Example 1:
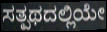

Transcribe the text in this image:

ಸತ್ಪಥದಲ್ಲಿಯೇ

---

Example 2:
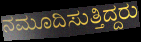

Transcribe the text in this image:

ನಮೂದಿಸುತ್ತಿದ್ದರು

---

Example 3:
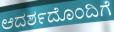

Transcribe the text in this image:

ಆದರ್ಶದೊಂದಿಗೆ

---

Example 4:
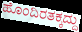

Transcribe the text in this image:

ಹೊಂದಿರತಕ್ಕದ್ದು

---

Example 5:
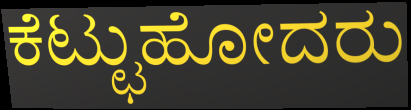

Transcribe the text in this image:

ಕೆಟ್ಟುಹೋದರು